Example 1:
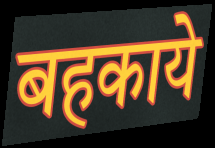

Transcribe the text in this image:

बहकाये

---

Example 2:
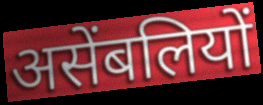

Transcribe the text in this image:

असेंबलियों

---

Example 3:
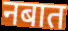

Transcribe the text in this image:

नबात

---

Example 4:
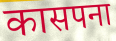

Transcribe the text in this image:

कासपना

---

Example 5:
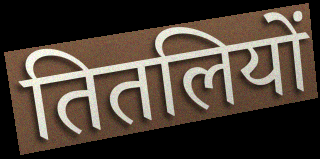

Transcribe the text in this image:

तितलियों